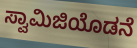
ಸ್ವಾಮಿಜಿಯೊಡನೆ